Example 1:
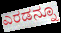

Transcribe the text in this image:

ಎರಡನ್ನೂ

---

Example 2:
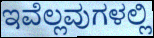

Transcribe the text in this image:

ಇವೆಲ್ಲವುಗಳಲ್ಲಿ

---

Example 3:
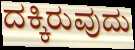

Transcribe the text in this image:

ದಕ್ಕಿರುವುದು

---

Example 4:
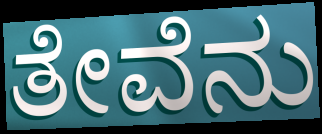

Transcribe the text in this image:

ತೇವೆನು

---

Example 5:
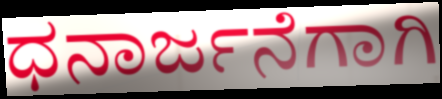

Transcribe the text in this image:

ಧನಾರ್ಜನೆಗಾಗಿ